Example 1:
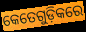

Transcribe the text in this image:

କେତେଗୁଡ଼ିକରେ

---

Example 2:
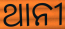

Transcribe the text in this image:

ଥାନୀ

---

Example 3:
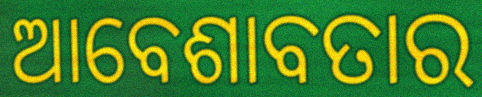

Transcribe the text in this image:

ଆବେଶାବତାର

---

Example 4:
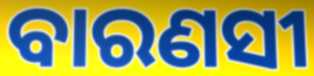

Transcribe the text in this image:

ବାରଣସୀ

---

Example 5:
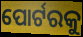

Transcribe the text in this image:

ପୋର୍ଟରକୁ